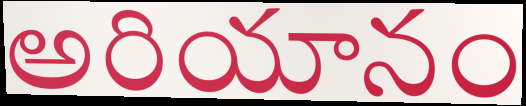
అరియానం